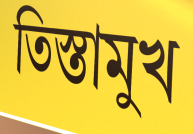
তিস্তামুখ